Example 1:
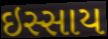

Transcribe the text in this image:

ઇસ્સાય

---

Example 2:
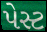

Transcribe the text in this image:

પેસ્ટ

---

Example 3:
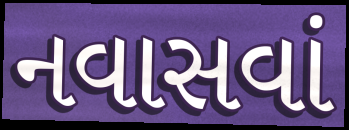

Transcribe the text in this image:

નવાસવાં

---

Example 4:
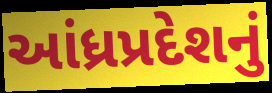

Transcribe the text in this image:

આંધ્રપ્રદેશનું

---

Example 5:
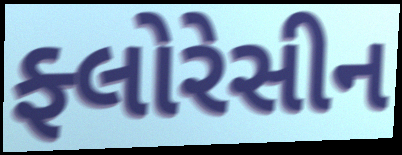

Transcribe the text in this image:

ફ્લોરેસીન